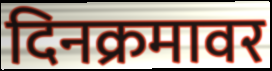
दिनक्रमावर